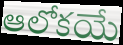
ఆలోకయే